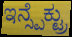
ಇನ್ಸ್ಪೆಕ್ಟ್ರು